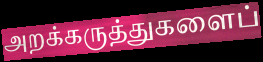
அறக்கருத்துகளைப்